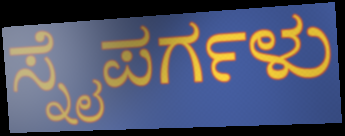
ಸ್ನೈಪರ್ಗಳು